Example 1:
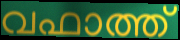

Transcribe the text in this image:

വഫാത്ത്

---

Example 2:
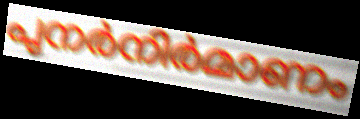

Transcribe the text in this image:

പുനർനിർമാണം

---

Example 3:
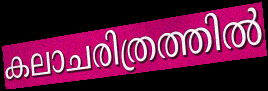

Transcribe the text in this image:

കലാചരിത്രത്തിൽ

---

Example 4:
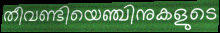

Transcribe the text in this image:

തീവണ്ടിയെഞ്ചിനുകളുടെ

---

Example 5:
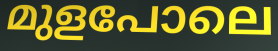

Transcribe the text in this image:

മുളപോലെ